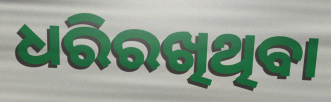
ଧରିରଖିଥିବା